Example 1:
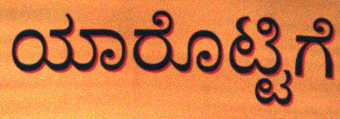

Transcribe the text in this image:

ಯಾರೊಟ್ಟಿಗೆ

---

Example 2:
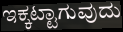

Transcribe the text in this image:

ಇಕ್ಕಟ್ಟಾಗುವುದು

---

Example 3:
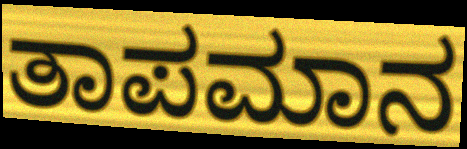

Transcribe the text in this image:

ತಾಪಮಾನ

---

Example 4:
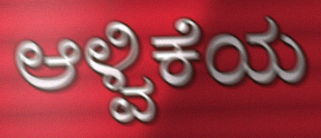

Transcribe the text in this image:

ಆಳ್ವಿಕೆಯ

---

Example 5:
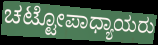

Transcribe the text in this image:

ಚಟ್ಟೋಪಾಧ್ಯಾಯರು